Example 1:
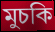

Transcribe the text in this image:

মুচকি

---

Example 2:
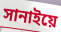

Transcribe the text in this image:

সানাইয়ে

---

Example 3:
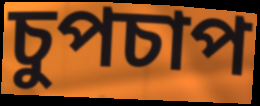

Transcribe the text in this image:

চুপচাপ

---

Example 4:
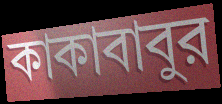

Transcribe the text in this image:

কাকাবাবুর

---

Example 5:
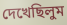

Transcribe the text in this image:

দেখেছিলুম